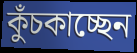
কুঁচকাচ্ছেন